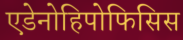
एडेनोहिपोफिसिस